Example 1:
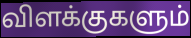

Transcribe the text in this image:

விளக்குகளும்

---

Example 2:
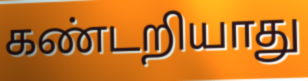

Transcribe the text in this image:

கண்டறியாது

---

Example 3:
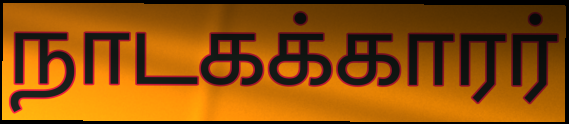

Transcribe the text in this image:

நாடகக்காரர்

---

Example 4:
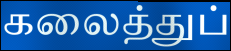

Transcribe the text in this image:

கலைத்துப்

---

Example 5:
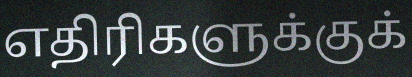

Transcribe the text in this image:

எதிரிகளுக்குக்